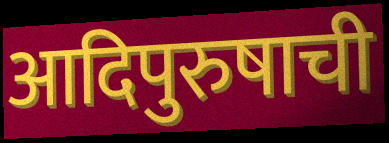
आदिपुरुषाची